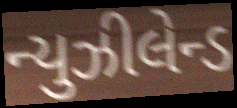
ન્યુઝીલેન્ડ